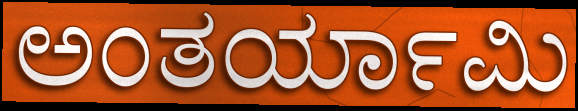
ಅಂತರ್ಯಾಮಿ